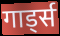
गार्ड्स